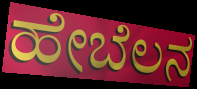
ಹೇಬೆಲನ